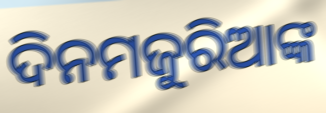
ଦିନମଜୁରିଆଙ୍କ